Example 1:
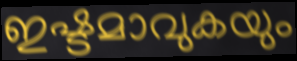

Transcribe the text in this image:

ഇഷ്ടമാവുകയും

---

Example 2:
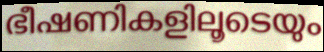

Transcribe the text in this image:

ഭീഷണികളിലൂടെയും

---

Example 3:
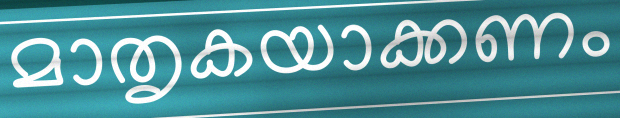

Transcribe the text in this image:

മാതൃകയാക്കണം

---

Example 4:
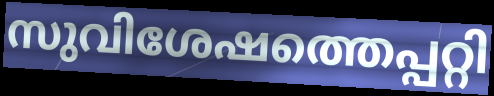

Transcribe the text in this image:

സുവിശേഷത്തെപ്പറ്റി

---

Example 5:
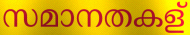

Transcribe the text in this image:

സമാനതകള്